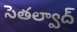
సెతల్వాద్